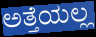
ಅತ್ತೆಯಲ್ಲ